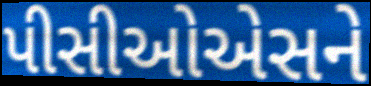
પીસીઓએસને